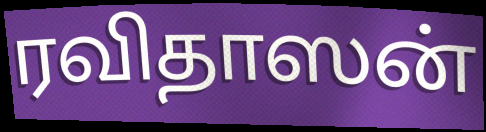
ரவிதாஸன்